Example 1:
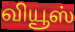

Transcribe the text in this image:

வியூஸ்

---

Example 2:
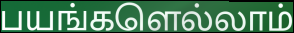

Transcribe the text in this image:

பயங்களெல்லாம்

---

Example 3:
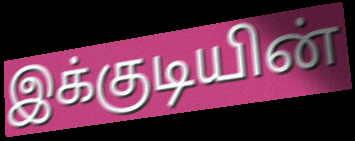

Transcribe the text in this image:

இக்குடியின்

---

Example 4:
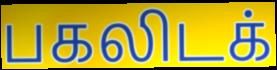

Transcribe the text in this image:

பகலிடக்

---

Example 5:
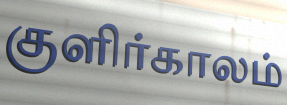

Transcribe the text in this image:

குளிர்காலம்